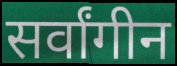
सर्वांगीन